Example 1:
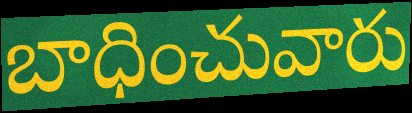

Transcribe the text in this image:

బాధించువారు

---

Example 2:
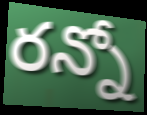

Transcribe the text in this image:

రన్నో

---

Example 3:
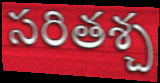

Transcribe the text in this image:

సరితశ్చ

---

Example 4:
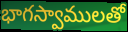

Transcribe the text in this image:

భాగస్వాములతో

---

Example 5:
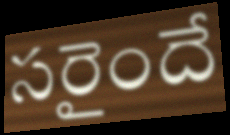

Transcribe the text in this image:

సరైందే